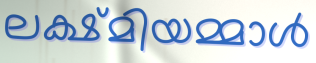
ലക്ഷ്മിയമ്മാൾ